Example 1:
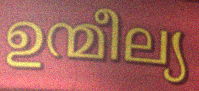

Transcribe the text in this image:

ഉന്മീല്യ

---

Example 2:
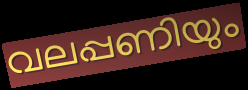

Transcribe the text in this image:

വലപ്പണിയും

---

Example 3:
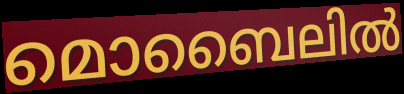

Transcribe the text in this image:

മൊബൈലിൽ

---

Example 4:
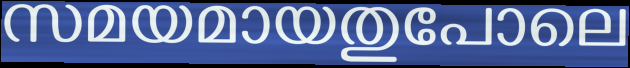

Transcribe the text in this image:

സമയമായതുപോലെ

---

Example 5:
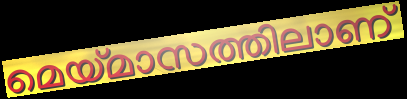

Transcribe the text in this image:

മെയ്മാസത്തിലാണ്